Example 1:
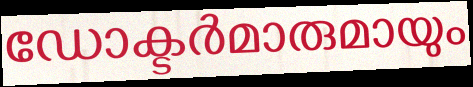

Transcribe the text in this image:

ഡോക്ടർമാരുമായും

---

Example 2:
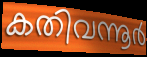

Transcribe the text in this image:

കതിവന്നൂർ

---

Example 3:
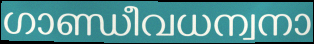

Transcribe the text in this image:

ഗാണ്ഡീവധന്വനാ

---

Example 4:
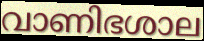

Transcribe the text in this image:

വാണിഭശാല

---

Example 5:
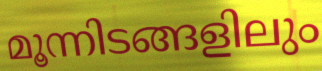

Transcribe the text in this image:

മൂന്നിടങ്ങളിലും